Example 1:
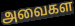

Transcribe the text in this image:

அவைகள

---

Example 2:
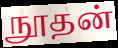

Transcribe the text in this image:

நூதன்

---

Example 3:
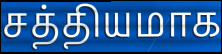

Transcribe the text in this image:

சத்தியமாக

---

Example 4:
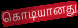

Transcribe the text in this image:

கொடியானது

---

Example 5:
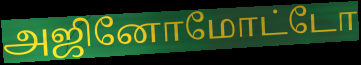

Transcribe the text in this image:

அஜினோமோட்டோ